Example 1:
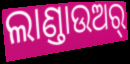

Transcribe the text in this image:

ଲାଣ୍ଡାଉଅର୍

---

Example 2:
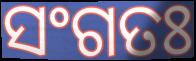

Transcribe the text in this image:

ସଂଗତଃ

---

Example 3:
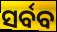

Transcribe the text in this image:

ସର୍ବବ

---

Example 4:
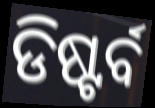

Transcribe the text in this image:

ଡିଷ୍ଟର୍ବ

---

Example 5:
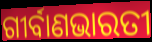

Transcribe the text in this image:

ଗୀର୍ବାଣଭାରତୀ